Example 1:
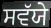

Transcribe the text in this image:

ਸਵੱਯੇ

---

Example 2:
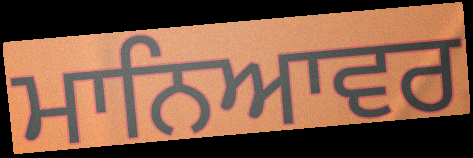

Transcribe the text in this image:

ਮਾਨਿਆਵਰ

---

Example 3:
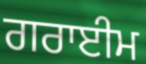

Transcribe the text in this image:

ਗਰਾਈਮ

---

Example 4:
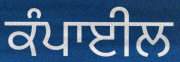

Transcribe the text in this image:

ਕੰਪਾਈਲ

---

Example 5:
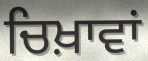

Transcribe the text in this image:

ਚਿਖ਼ਾਵਾਂ